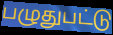
பழுதுபட்டு